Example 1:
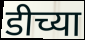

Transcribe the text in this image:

डीच्या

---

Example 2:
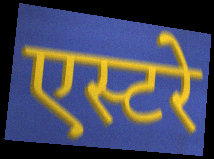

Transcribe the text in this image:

एस्टरे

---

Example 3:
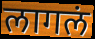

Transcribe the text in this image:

लागलं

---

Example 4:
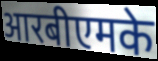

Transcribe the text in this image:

आरबीएमके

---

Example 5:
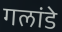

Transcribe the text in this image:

गलांडे